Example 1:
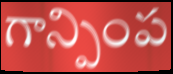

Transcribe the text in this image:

గాన్పింప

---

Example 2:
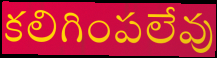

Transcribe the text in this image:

కలిగింపలేవు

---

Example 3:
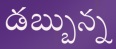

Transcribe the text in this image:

డబ్బున్న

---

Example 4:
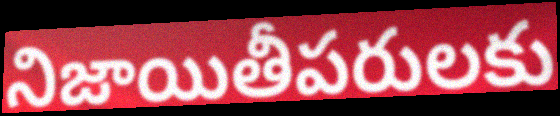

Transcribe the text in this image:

నిజాయితీపరులకు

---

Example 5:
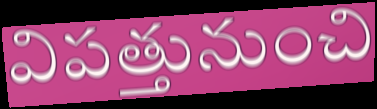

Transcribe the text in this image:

విపత్తునుంచి